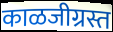
काळजीग्रस्त